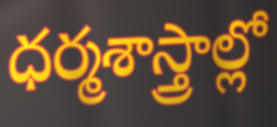
ధర్మశాస్త్రాల్లో